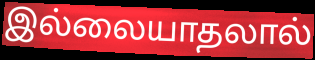
இல்லையாதலால்